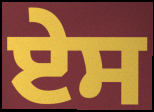
ਏਸ